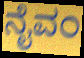
ನೈವಂ